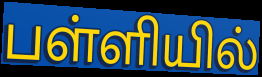
பள்ளியில்